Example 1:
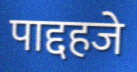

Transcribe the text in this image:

पाद्दहजे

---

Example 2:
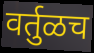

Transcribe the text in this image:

वर्तुळच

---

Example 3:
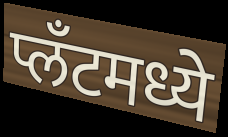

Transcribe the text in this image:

प्लँटमध्ये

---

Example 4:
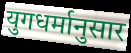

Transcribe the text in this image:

युगधर्मानुसार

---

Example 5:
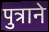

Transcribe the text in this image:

पुत्राने